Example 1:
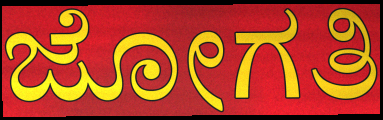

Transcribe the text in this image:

ಜೋಗತಿ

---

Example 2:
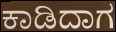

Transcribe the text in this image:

ಕಾಡಿದಾಗ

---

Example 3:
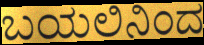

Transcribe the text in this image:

ಬಯಲಿನಿಂದ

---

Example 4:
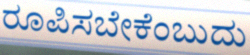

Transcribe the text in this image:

ರೂಪಿಸಬೇಕೆಂಬುದು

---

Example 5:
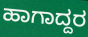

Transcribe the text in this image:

ಹಾಗಾದ್ದರ